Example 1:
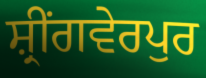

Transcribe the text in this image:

ਸ਼੍ਰੀਂਗਵੇਰਪੁਰ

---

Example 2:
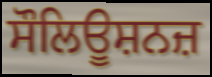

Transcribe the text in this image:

ਸੌਲਿਊਸ਼ਨਜ਼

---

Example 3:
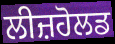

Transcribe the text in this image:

ਲੀਜ਼ਹੋਲਡ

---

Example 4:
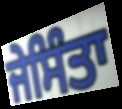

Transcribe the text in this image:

ਜੇਸਿੰਤਾ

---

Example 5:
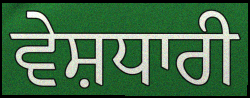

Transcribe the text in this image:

ਵੇਸ਼ਧਾਰੀ